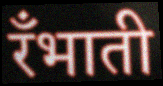
रँभाती